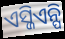
ଏସ୍ଜିଏନ୍ପି